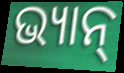
ଭ୍ୟାନ୍